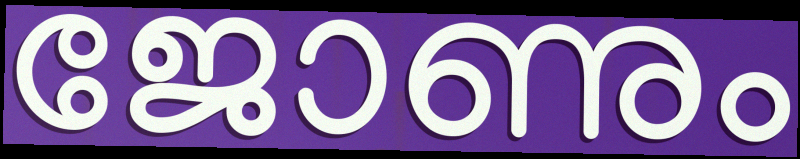
ജോണും